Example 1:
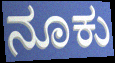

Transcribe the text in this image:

ನೂಕು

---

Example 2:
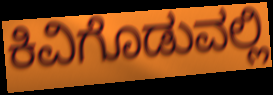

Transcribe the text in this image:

ಕಿವಿಗೊಡುವಲ್ಲಿ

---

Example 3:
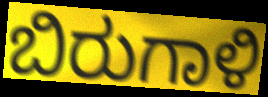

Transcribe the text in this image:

ಬಿರುಗಾಳಿ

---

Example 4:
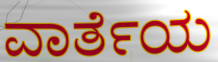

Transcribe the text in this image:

ವಾರ್ತೆಯ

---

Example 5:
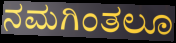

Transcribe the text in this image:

ನಮಗಿಂತಲೂ